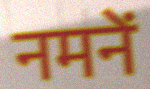
नमनें